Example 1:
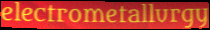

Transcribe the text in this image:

electrometallurgy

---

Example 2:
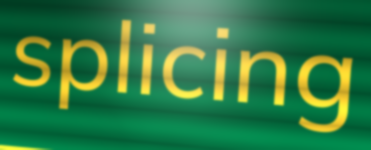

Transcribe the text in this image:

splicing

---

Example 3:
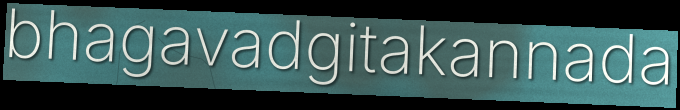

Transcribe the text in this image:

bhagavadgitakannada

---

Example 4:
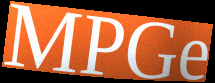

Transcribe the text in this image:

MPGe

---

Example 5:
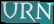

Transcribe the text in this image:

URN